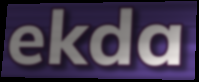
ekda